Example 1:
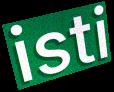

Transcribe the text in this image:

isti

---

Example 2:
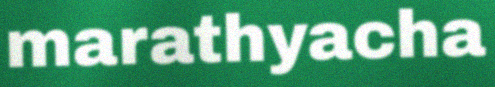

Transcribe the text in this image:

marathyacha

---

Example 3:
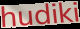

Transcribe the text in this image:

hudiki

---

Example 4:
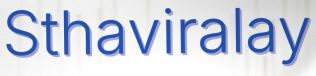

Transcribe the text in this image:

Sthaviralay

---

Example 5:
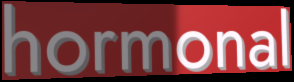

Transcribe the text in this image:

hormonal